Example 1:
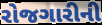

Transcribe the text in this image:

રોજગારીની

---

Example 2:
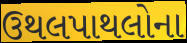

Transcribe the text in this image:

ઉથલપાથલોના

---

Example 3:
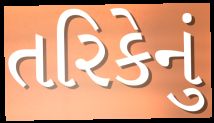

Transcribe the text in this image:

તરિકેનું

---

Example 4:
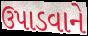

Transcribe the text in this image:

ઉપાડવાને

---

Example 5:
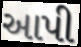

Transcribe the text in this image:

આપી